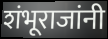
शंभूराजांनी